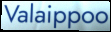
Valaippoo